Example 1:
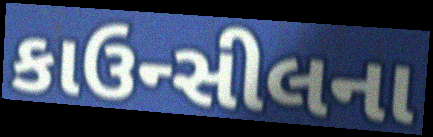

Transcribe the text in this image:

કાઉન્સીલના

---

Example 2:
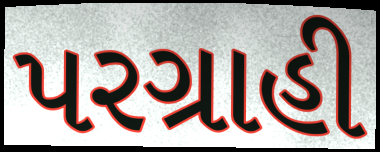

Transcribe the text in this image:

પરગ્રાહી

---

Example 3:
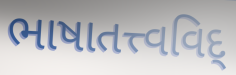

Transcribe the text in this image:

ભાષાતત્ત્વવિદ્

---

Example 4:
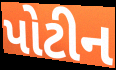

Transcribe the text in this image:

પોટીન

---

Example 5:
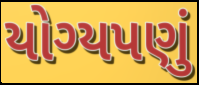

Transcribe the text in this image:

યોગ્યપણું